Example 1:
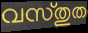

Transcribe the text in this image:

വസ്തുത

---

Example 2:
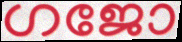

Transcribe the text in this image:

ഗജോ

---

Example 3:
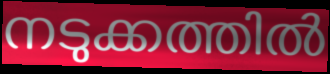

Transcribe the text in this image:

നടുക്കത്തിൽ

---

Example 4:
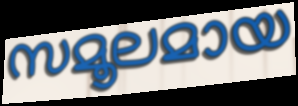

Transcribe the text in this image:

സമൂലമായ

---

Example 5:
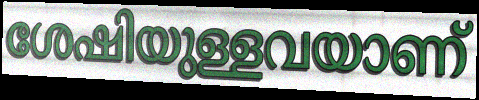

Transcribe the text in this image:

ശേഷിയുള്ളവയാണ്